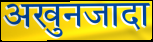
अखुनजादा